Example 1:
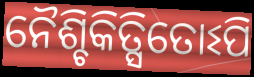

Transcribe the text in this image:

ନୈଶ୍ଚିକିତ୍ସିତୋଽପି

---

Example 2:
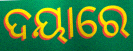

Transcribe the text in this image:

ଦୟାରେ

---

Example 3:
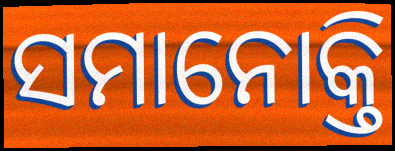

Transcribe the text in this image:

ସମାନୋକ୍ତି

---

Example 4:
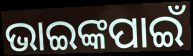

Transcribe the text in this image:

ଭାଇଙ୍କପାଇଁ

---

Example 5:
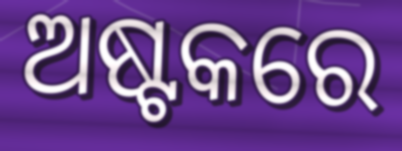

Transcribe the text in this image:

ଅଷ୍ଟକରେ